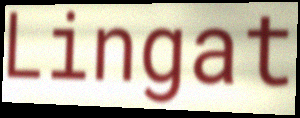
Lingat